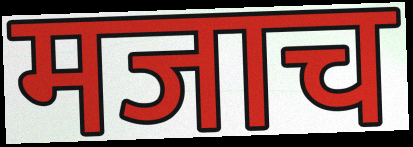
मजाच